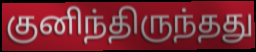
குனிந்திருந்தது